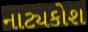
નાટ્યકોશ